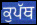
ਕੁਪੱਥ